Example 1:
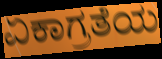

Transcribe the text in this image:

ಏಕಾಗ್ರತೆಯ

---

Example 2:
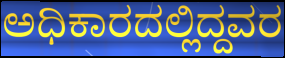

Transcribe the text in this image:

ಅಧಿಕಾರದಲ್ಲಿದ್ದವರ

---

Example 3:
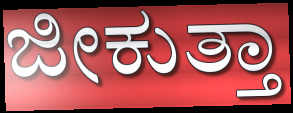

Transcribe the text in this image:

ಜೀಕುತ್ತಾ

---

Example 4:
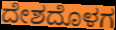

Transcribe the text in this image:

ದೇಶದೊಳಗ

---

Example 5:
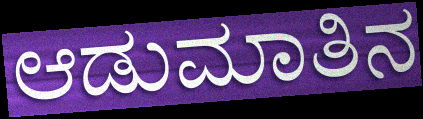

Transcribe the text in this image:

ಆಡುಮಾತಿನ